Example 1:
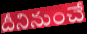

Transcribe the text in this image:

దీనినుంచే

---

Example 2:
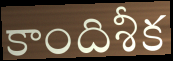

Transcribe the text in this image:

కాందిశీక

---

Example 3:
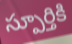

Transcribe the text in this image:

స్పూర్తికి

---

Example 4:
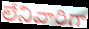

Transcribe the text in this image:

లేనివారిగా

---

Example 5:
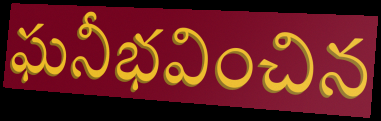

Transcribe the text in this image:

ఘనీభవించిన